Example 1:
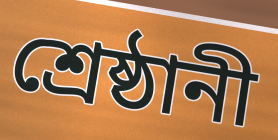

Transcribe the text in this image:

শ্রেষ্ঠানী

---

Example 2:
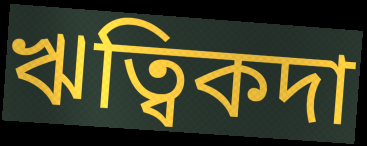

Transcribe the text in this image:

ঋত্বিকদা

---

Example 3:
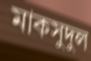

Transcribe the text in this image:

মাকসুদুল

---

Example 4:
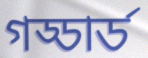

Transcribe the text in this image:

গড্ডার্ড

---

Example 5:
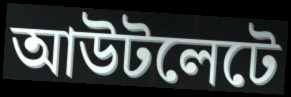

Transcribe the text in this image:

আউটলেটে